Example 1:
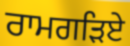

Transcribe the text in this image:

ਰਾਮਗੜਿਏ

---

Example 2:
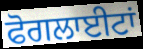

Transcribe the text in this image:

ਫੋਗਲਾਈਟਾਂ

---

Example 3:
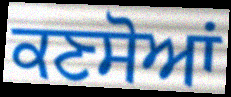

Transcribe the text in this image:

ਕਣਸੋਆਂ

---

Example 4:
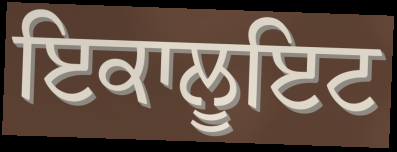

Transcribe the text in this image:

ਇਕਾਲੂਇਟ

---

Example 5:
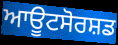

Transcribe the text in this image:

ਆਊਟਸੋਰਸ਼ਡ